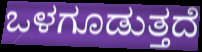
ಒಳಗೂಡುತ್ತದೆ